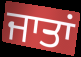
ਜਾਤਾਂ